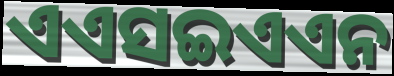
ଏଏସଇଏଏନ